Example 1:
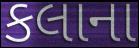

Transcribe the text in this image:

કલાના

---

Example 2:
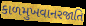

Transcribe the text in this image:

કાળમુખવાનરજાતિ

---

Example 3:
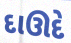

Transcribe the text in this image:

દાઊદે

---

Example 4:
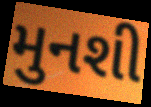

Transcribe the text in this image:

મુનશી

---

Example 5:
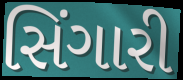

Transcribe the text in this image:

સિંગારી